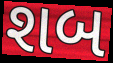
શબ